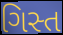
ગિસ્ત